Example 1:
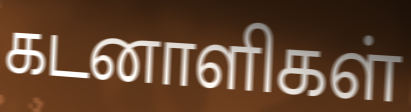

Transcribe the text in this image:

கடனாளிகள்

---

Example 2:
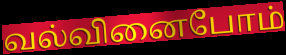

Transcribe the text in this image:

வல்வினைபோம்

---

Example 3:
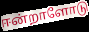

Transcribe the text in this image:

ஈன்றாளோடு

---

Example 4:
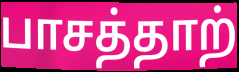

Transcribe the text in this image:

பாசத்தாற்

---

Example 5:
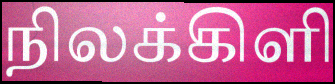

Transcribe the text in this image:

நிலக்கிளி